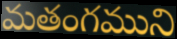
మతంగముని